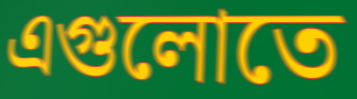
এগুলোতে